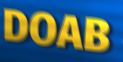
DOAB